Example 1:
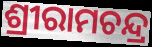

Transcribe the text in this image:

ଶ୍ରୀରାମଚନ୍ଦ୍ର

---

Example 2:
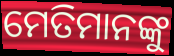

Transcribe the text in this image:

ମେତିମାନଙ୍କୁ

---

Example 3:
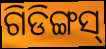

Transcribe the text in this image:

ଗିଡିଙ୍ଗସ୍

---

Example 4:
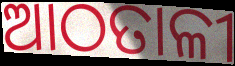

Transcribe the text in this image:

ଆଠତାଳୀ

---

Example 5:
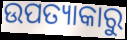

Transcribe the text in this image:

ଉପତ୍ୟାକାରୁ